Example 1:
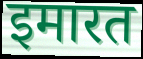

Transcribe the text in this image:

इमारत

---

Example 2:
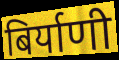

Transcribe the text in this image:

बिर्याणी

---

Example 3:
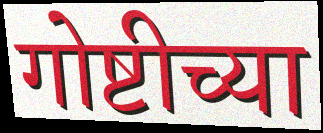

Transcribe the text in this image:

गोष्टीच्या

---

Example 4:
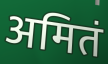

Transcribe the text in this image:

अमितं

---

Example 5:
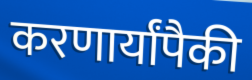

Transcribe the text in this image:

करणार्यांपैकी